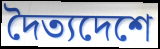
দৈত্যদেশে